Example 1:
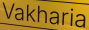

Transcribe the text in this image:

Vakharia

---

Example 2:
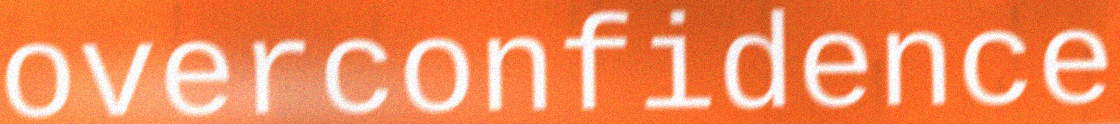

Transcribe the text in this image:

overconfidence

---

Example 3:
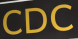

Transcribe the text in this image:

CDC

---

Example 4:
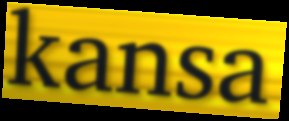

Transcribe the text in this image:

kansa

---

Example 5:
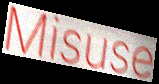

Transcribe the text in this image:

Misuse